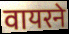
वायरने